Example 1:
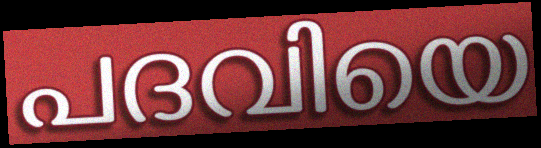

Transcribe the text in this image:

പദവിയെ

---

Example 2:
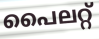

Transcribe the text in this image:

പൈലറ്റ്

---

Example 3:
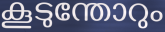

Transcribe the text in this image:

കൂടുന്തോറും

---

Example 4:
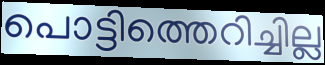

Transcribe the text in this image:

പൊട്ടിത്തെറിച്ചില്ല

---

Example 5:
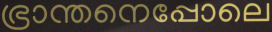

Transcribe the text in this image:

ഭ്രാന്തനെപ്പോലെ